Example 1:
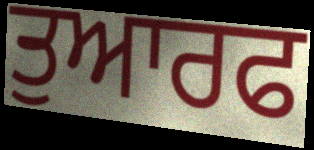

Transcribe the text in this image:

ਤੁਆਰਫ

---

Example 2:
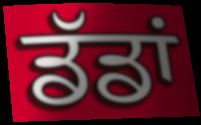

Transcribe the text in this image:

ਡੱਡਾਂ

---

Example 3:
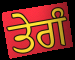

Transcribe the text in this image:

ਤੇਗੰ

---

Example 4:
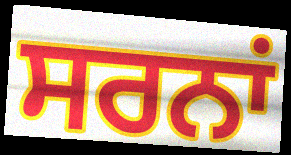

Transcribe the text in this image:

ਸਰਨਾਂ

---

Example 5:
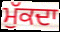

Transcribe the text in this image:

ਮੁੱਕਦਾ